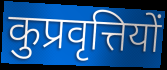
कुप्रवृत्तियों